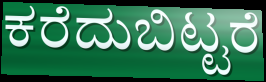
ಕರೆದುಬಿಟ್ಟರೆ